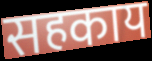
सहकाय